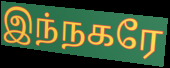
இந்நகரே